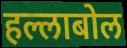
हल्लाबोल